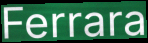
Ferrara